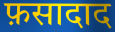
फ़सादाद